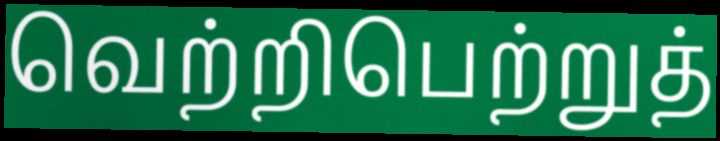
வெற்றிபெற்றுத்